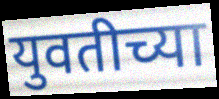
युवतीच्या